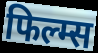
फिल्म्स